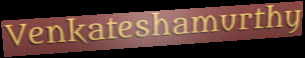
Venkateshamurthy